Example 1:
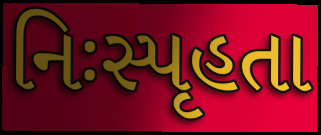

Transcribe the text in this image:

નિઃસ્પૃહતા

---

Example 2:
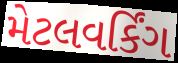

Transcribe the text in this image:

મેટલવર્કિંગ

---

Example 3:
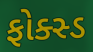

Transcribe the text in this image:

ફોક્સ્ડ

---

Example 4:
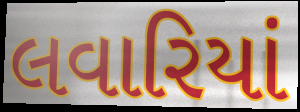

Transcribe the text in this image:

લવારિયાં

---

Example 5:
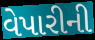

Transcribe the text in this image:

વેપારીની